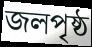
জলপৃষ্ঠ